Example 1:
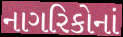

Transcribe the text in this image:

નાગરિકોનાં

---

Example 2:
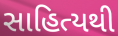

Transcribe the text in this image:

સાહિત્યથી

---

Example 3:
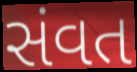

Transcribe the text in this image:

સંવત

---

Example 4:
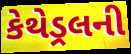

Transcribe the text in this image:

કેથેડ્રલની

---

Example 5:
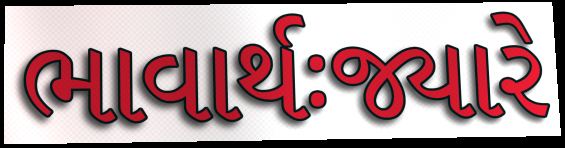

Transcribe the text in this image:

ભાવાર્થઃજ્યારે